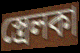
স্ত্রেলকা